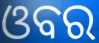
ଓବର